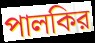
পালকির